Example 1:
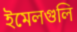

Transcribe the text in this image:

ইমেলগুলি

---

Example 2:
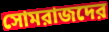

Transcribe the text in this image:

সোমরাজদের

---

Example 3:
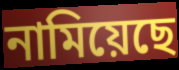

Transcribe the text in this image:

নামিয়েছে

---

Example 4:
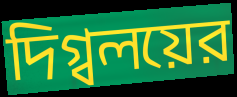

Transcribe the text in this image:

দিগ্বলয়ের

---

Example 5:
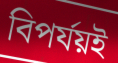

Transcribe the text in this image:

বিপর্যয়ই